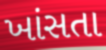
ખાંસતા